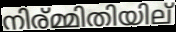
നിര്മ്മിതിയില്